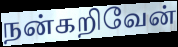
நன்கறிவேன்